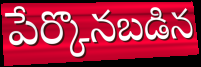
పేర్కొనబడిన